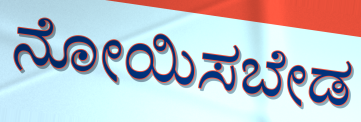
ನೋಯಿಸಬೇಡ